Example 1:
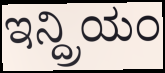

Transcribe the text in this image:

ಇನ್ದ್ರಿಯಂ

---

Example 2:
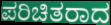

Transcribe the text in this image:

ಪರಿಚಿತರಾದ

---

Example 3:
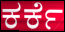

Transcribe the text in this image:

ಕರ್ಕೆ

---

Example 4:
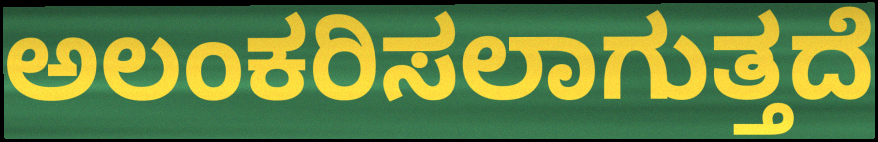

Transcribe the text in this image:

ಅಲಂಕರಿಸಲಾಗುತ್ತದೆ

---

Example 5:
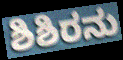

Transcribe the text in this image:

ಶಿಶಿರನು